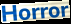
Horror